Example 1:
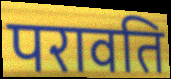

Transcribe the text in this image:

परावति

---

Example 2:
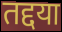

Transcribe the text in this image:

तद्दया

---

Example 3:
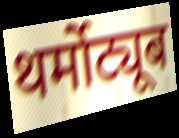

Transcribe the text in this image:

थर्मोट्यूब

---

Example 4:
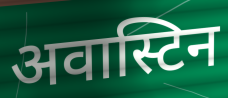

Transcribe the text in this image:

अवास्टिन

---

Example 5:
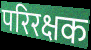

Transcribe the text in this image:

परिरक्षक